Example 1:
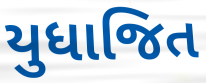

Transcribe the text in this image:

યુધાજિત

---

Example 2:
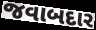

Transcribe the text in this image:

જવાબદાર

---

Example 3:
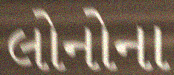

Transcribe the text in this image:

લોનોના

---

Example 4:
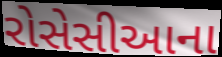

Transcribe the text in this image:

રોસેસીઆના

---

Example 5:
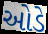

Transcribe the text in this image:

ઓડે